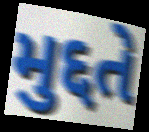
મુદ્દતે